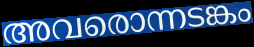
അവരൊന്നടങ്കം